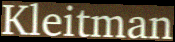
Kleitman